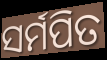
ସର୍ମପିତ